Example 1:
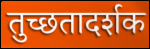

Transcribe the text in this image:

तुच्छतादर्शक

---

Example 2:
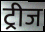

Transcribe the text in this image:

ट्रीज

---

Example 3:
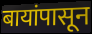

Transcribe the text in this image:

बायांपासून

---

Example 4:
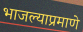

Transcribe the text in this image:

भाजल्याप्रमाणे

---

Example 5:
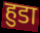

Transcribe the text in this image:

हुडा